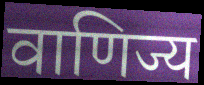
वाणिज्य